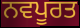
ਨਵਪੂਰਤ